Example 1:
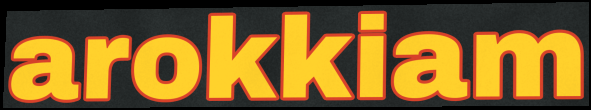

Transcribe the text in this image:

arokkiam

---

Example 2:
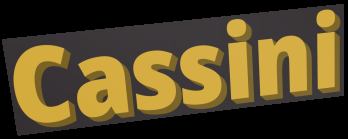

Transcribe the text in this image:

Cassini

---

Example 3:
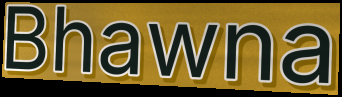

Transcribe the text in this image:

Bhawna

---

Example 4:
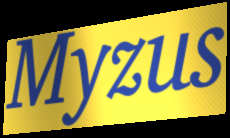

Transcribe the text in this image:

Myzus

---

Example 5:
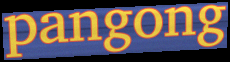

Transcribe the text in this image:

pangong